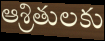
ఆశ్రితులకు